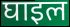
घाइल